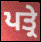
ਪਤ੍ਰੇ